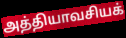
அத்தியாவசியக்